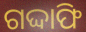
ଗଦ୍ଦାଫି